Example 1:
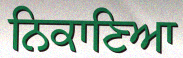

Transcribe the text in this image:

ਨਿਕਾਣਿਆ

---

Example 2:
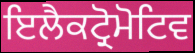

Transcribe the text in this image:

ਇਲੈਕਟ੍ਰੋਮੋਟਿਵ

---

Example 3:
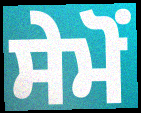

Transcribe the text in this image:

ਸੇਮੋਂ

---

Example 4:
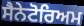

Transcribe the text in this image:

ਸੈਨੇਟੋਰਿਅਮ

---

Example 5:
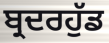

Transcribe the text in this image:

ਬ੍ਰਦਰਹੁੱਡ